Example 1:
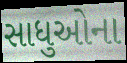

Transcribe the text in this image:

સાધુઓના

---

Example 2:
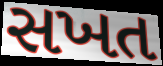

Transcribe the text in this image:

સખત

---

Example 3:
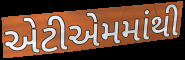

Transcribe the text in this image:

એટીએમમાંથી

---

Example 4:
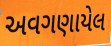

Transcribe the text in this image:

અવગણાયેલ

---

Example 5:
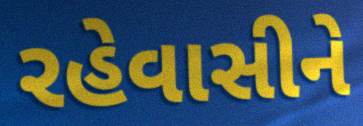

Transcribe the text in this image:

રહેવાસીને